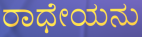
ರಾಧೇಯನು